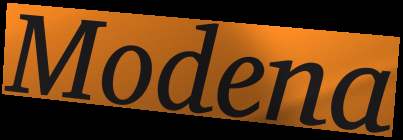
Modena